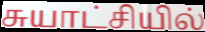
சுயாட்சியில்